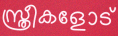
സ്ത്രീകളോട്